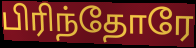
பிரிந்தோரே